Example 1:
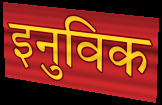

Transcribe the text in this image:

इनुविक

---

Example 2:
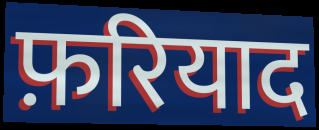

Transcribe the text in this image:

फ़रियाद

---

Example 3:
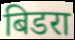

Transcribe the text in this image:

बिडरा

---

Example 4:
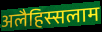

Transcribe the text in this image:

अलैहिस्सलाम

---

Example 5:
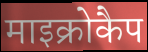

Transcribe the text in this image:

माइक्रोकैप